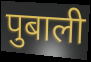
पुबाली